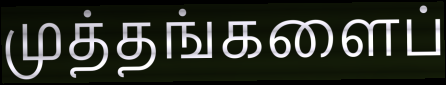
முத்தங்களைப்